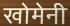
खोमेनी